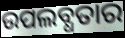
ଉପଲବ୍ଧତାର